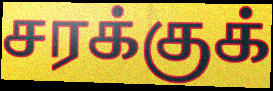
சரக்குக்